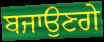
ਬਜਾਉਣਗੇ